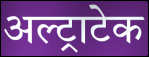
अल्‍ट्राटेक